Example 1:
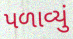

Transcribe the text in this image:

પળાવ્યું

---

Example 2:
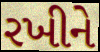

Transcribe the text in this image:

રખીને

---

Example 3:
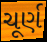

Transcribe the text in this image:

ચૂર્ણ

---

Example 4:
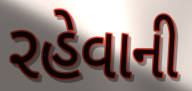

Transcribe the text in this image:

રહેવાની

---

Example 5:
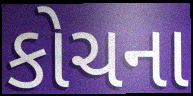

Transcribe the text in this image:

કોચના